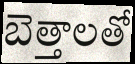
బెత్తాలతో